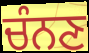
ਚੰਨਣ